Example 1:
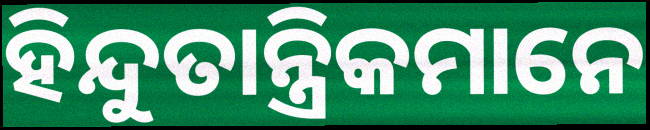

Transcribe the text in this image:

ହିନ୍ଦୁତାନ୍ତ୍ରିକମାନେ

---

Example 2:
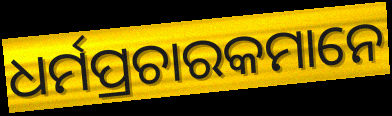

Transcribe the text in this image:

ଧର୍ମପ୍ରଚାରକମାନେ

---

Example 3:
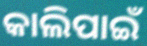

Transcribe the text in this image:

କାଲିପାଇଁ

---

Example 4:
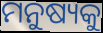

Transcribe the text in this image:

ମନୁଷ୍ୟକୁ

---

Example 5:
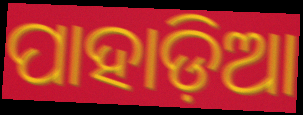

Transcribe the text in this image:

ପାହାଡ଼ିଆ